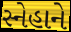
સ્નેહાને